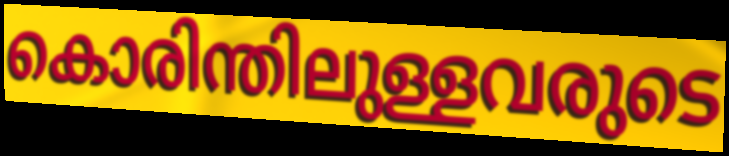
കൊരിന്തിലുള്ളവരുടെ